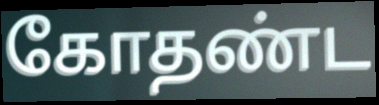
கோதண்ட